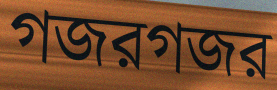
গজরগজর